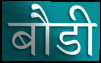
बौडी